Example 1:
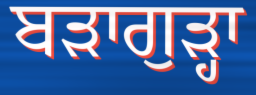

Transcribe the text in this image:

ਬੜਾਗੁੜ੍ਹਾ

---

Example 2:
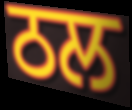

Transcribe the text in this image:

ਠਲ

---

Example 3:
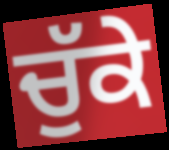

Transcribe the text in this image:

ਚੁੱਕੇ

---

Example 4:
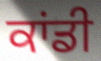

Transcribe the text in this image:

ਕਾਂਡੀ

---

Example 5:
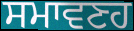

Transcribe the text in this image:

ਸਮਾਵਣਹ